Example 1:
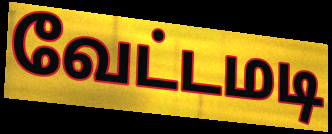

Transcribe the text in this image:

வேட்டமடி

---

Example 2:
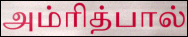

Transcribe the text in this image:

அம்ரித்பால்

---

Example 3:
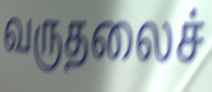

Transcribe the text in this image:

வருதலைச்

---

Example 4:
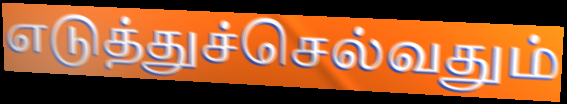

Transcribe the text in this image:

எடுத்துச்செல்வதும்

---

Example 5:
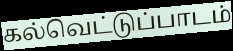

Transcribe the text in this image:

கல்வெட்டுப்பாடம்